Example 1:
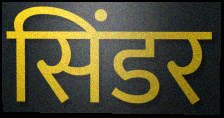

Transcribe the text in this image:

सिंडर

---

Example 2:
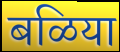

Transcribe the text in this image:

बळिया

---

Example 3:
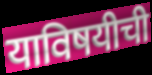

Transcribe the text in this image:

याविषयीची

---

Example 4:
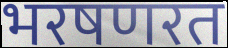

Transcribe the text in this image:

भरषणरत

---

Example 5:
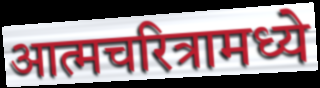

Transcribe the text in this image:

आत्मचरित्रामध्ये